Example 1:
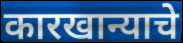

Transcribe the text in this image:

कारखान्याचे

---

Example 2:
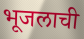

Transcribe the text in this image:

भूजलाची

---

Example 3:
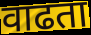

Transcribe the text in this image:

वाढता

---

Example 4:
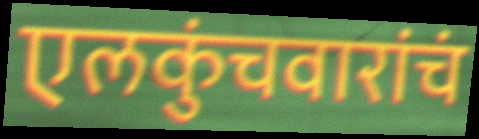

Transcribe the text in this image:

एलकुंचवारांचं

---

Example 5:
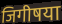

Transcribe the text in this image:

जिगीषया